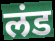
लंड